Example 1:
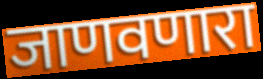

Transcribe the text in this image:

जाणवणारा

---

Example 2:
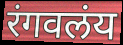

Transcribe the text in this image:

रंगवलंय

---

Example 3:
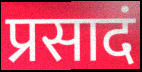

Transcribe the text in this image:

प्रसादं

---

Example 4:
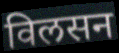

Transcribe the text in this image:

विलसन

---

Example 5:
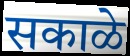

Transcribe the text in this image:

सकाळे